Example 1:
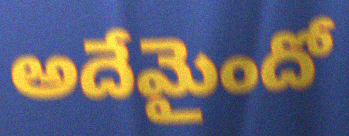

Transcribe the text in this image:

అదేమైందో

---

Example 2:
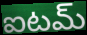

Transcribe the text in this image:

ఐటమ్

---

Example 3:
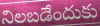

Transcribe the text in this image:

నిలబడేందుకు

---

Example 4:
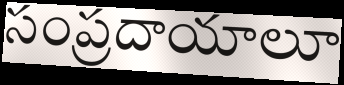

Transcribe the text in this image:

సంప్రదాయాలూ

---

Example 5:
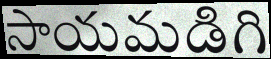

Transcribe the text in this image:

సాయమడిగి